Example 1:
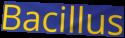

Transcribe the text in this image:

Bacillus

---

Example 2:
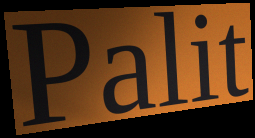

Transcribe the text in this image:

Palit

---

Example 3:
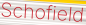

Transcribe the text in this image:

Schofield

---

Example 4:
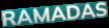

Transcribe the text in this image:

RAMADAS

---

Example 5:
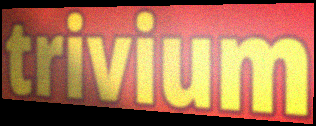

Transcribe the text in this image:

trivium